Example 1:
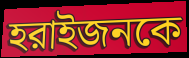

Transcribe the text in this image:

হরাইজনকে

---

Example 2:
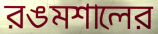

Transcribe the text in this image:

রঙমশালের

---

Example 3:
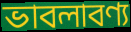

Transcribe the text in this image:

ভাবলাবণ্য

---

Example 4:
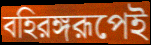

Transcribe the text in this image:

বহিরঙ্গরূপেই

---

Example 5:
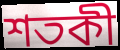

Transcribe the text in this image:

শতকী